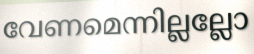
വേണമെന്നില്ലല്ലോ